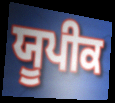
ਯੂਪੀਕ